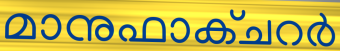
മാനുഫാക്ചറർ